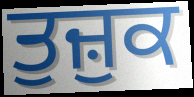
ਤੁਜ਼ੁਕ